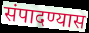
संपादण्यास